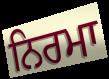
ਨਿਰਮਾ